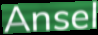
Ansel